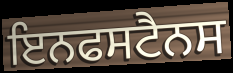
ਇਨਫਸਟੈਨਸ